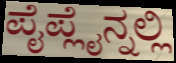
ಪೈಪ್ಲೈನ್ನಲ್ಲಿ